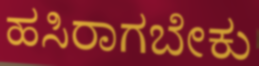
ಹಸಿರಾಗಬೇಕು